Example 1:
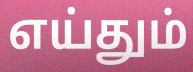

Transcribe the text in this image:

எய்தும்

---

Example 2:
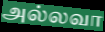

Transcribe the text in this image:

அல்லவா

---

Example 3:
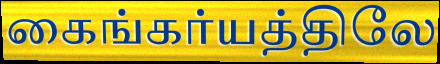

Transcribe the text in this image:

கைங்கர்யத்திலே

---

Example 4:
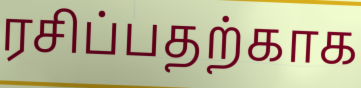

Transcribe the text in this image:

ரசிப்பதற்காக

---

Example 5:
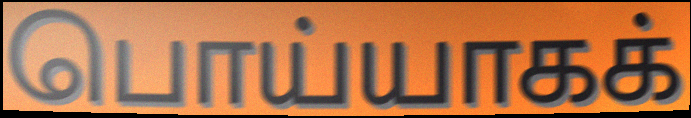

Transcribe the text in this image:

பொய்யாகக்